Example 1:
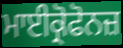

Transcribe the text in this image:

ਮਾਈਕ੍ਰੋਫੋਨਜ਼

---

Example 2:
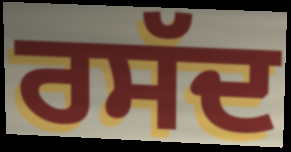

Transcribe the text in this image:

ਰਸੱਦ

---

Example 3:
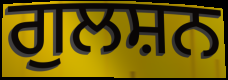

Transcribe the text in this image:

ਗੁਲਸ਼ਨ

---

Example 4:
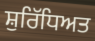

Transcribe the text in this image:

ਸ਼ੁਰਿੱਧਿਅਤ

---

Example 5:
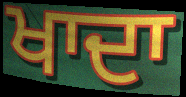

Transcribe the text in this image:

ਖਾਦਾ